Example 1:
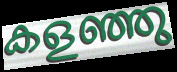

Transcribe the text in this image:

കളഞ്ഞു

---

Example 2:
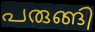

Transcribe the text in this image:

പരുങ്ങി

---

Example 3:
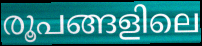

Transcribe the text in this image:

രൂപങ്ങളിലെ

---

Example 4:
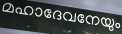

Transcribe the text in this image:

മഹാദേവനേയും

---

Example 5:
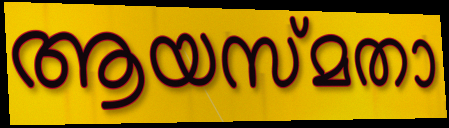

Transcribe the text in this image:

ആയസ്മതാ